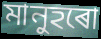
মানুহৰো